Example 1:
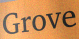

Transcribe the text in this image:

Grove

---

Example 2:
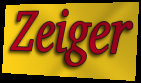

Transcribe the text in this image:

Zeiger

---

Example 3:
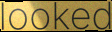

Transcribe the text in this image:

looked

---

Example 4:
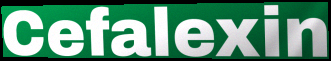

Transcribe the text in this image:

Cefalexin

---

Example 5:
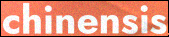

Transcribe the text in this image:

chinensis